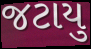
જટાયુ